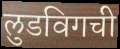
लुडविगची